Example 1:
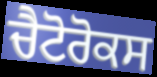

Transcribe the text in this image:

ਚੈਟੋਰੋਕਸ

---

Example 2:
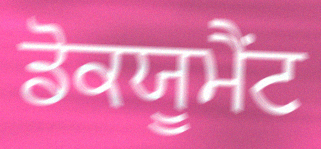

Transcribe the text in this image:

ਡੋਕਯੂਮੈਂਟ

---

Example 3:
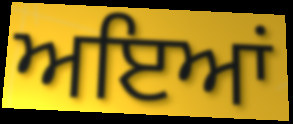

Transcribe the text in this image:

ਅਇਆਂ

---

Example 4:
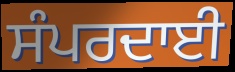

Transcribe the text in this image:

ਸੰਪਰਦਾਈ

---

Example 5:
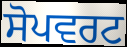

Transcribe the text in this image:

ਸੋਪਵਰਟ